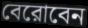
বেরোবেন